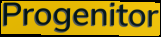
Progenitor